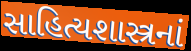
સાહિત્યશાસ્ત્રનાં